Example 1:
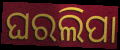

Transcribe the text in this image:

ଘରଲିପା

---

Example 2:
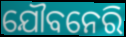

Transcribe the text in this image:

ଯୌବନେରି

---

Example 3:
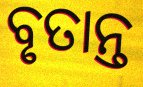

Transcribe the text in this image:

ବୃତାନ୍ତ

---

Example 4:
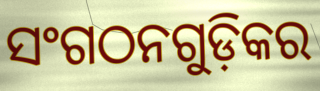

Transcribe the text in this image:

ସଂଗଠନଗୁଡ଼ିକର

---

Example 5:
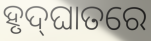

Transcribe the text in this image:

ହୃଦ୍‌ଘାତରେ